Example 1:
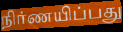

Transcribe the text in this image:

நிர்ணயிப்பது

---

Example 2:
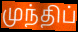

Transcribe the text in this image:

முந்திப்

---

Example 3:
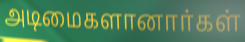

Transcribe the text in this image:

அடிமைகளானார்கள்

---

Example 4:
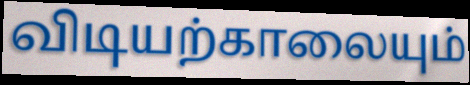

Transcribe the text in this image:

விடியற்காலையும்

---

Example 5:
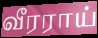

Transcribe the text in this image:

வீரராய்